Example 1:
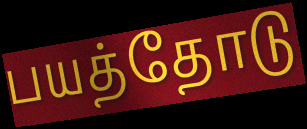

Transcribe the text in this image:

பயத்தோடு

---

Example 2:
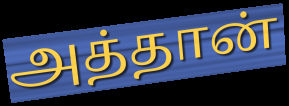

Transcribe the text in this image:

அத்தான்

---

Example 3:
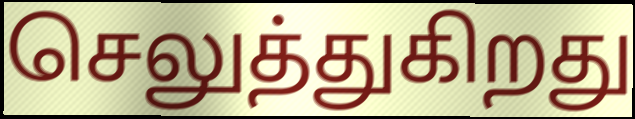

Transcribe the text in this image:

செலுத்துகிறது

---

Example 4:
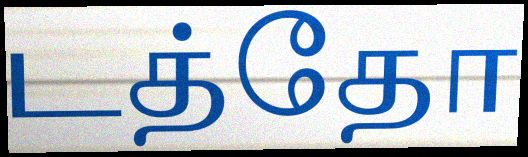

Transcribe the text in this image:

டத்தோ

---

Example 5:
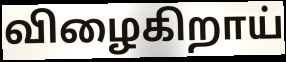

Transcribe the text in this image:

விழைகிறாய்